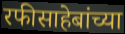
रफीसाहेबांच्या